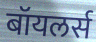
बॉयलर्स